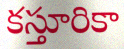
కస్తూరికా